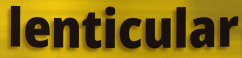
lenticular